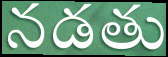
నడతు